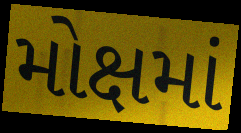
મોક્ષમાં